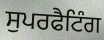
ਸੁਪਰਫੈਟਿੰਗ